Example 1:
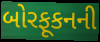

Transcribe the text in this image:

બોરફૂકનની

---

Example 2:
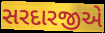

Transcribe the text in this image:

સરદારજીએ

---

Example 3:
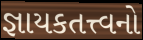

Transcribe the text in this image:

જ્ઞાયકતત્ત્વનો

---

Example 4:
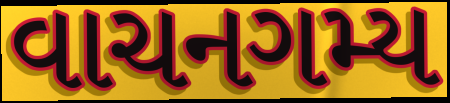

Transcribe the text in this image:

વાચનગમ્ય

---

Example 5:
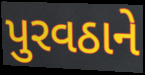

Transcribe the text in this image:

પુરવઠાને